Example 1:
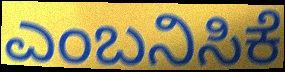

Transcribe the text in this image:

ಎಂಬನಿಸಿಕೆ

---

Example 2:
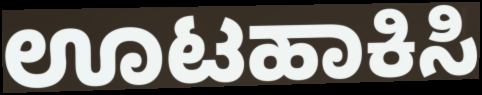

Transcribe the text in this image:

ಊಟಹಾಕಿಸಿ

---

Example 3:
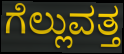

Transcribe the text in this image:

ಗೆಲ್ಲುವತ್ತ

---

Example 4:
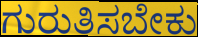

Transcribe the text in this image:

ಗುರುತಿಸಬೇಕು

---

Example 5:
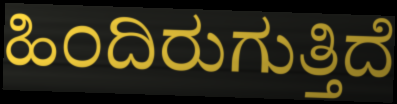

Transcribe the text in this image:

ಹಿಂದಿರುಗುತ್ತಿದೆ